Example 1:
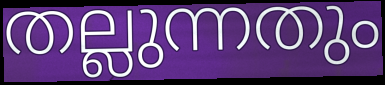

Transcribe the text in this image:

തല്ലുന്നതും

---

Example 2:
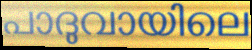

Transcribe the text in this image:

പാദുവായിലെ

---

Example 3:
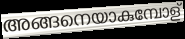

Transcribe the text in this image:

അങ്ങനെയാകുമ്പോള്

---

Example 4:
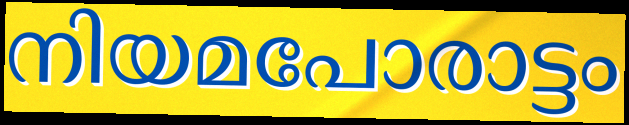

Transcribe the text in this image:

നിയമപോരാട്ടം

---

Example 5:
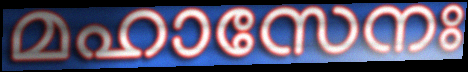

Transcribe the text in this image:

മഹാസേനഃ